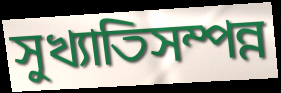
সুখ্যাতিসম্পন্ন